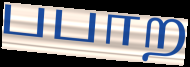
பபாற